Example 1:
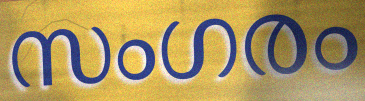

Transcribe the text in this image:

സംഗരം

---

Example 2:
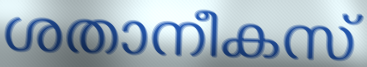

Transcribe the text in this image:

ശതാനീകസ്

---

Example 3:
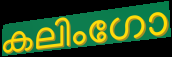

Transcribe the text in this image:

കലിംഗോ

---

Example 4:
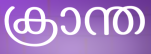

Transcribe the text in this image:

ക്രാന്ത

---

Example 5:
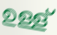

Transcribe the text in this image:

ഉള്ള്